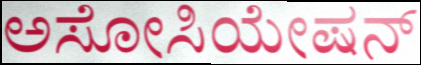
ಅಸೋಸಿಯೇಷನ್